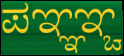
ಪಞ್ಞಞ್ಚ